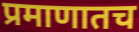
प्रमाणातच